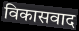
विकासवाद